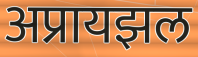
अप्रायझल